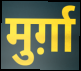
मुर्ग़ा